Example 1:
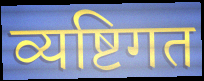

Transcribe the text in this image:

व्यष्टिगत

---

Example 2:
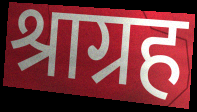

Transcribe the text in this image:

श्राग्रह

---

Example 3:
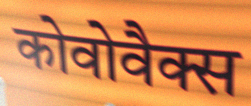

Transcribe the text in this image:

कोवोवैक्स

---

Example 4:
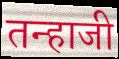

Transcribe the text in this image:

तन्हाजी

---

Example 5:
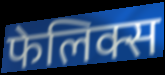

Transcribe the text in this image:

फेलिक्स